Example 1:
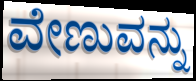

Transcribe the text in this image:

ವೇಣುವನ್ನು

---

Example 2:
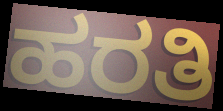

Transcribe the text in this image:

ಹರತಿ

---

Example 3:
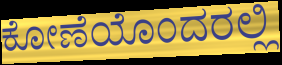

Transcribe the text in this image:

ಕೋಣೆಯೊಂದರಲ್ಲಿ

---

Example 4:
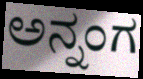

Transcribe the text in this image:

ಅನ್ನಂಗ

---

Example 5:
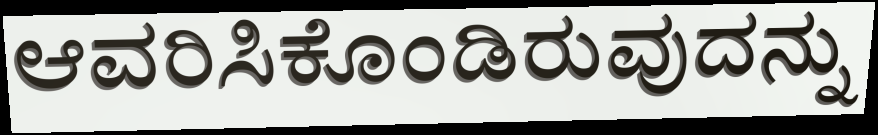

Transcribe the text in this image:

ಆವರಿಸಿಕೊಂಡಿರುವುದನ್ನು